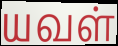
யவள்